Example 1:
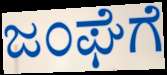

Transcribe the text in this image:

ಜಂಘೆಗೆ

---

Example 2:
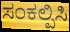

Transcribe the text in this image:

ಸಂಕಲ್ಪಿಸಿ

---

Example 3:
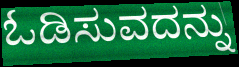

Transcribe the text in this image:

ಓಡಿಸುವದನ್ನು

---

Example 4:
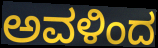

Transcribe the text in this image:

ಅವಳಿಂದ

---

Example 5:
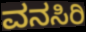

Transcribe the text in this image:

ವನಸಿರಿ